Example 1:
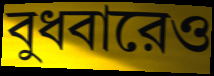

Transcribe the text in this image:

বুধবারেও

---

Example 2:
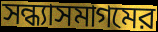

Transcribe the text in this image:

সন্ধ্যাসমাগমের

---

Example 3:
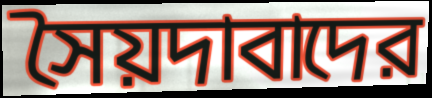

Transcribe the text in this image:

সৈয়দাবাদের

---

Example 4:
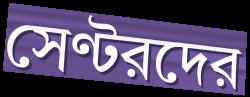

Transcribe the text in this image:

সেণ্টরদের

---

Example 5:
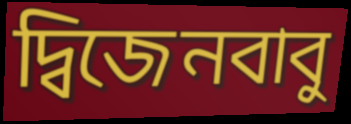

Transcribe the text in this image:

দ্বিজেনবাবু